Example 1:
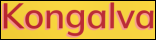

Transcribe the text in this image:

Kongalva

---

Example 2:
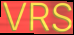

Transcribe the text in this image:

VRS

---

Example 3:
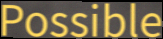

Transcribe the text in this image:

Possible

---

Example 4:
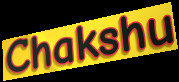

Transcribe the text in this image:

Chakshu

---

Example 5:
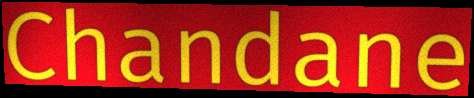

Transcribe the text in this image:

Chandane